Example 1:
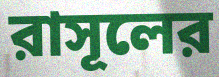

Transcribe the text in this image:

রাসূলের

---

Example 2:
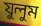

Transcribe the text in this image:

যুলুম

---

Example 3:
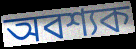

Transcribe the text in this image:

অবশ্যক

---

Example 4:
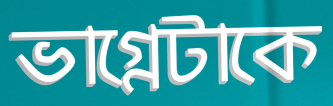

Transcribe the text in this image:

ভাগ্নেটাকে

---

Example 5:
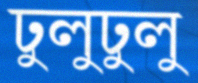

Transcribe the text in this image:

ঢুলুঢুলু